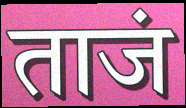
ताजं